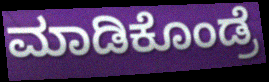
ಮಾಡಿಕೊಂಡ್ರೆ